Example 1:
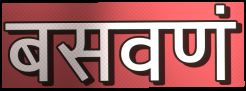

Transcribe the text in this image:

बसवणं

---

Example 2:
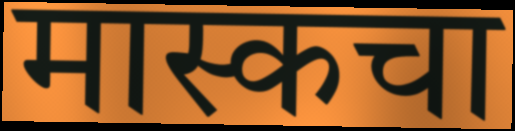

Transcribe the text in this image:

मास्कचा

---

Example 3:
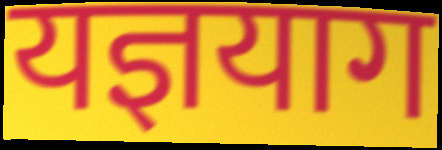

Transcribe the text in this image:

यज्ञयाग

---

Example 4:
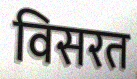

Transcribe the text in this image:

विसरत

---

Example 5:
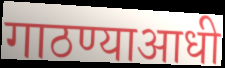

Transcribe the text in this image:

गाठण्याआधी